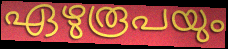
ഏഴുരൂപയും